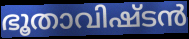
ഭൂതാവിഷ്ടൻ